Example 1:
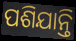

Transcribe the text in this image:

ପଶିଯାନ୍ତି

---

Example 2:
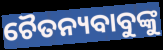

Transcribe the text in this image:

ଚୈତନ୍ୟବାବୁଙ୍କୁ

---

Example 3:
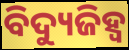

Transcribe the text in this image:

ବିଦ୍ୟୁଜିହ୍ୱ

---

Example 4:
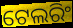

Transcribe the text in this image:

ଟେଲରିଂ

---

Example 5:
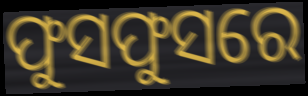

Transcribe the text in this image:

ଫୁସଫୁସରେ